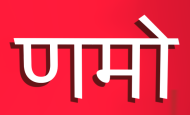
णमो